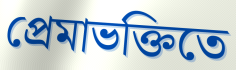
প্রেমাভক্তিতে